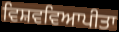
ਵਿਸ਼ਵਵਿਆਪੀਤਾ